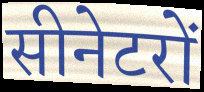
सीनेटरों